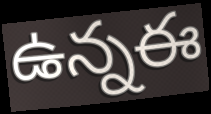
ఉన్నఈ